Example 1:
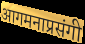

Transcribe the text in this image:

आगमनाप्रसंगी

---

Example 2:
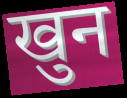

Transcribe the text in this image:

खुन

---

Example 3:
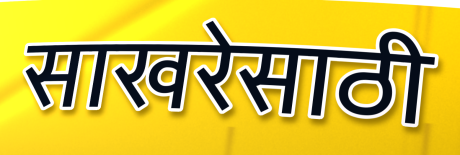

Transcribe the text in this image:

साखरेसाठी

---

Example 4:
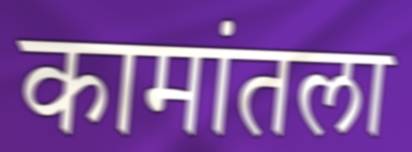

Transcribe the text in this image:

कामांतला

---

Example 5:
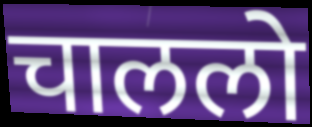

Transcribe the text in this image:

चाललो